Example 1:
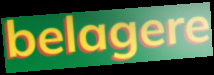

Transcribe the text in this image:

belagere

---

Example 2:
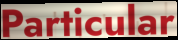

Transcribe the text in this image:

Particular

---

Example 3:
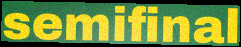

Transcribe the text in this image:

semifinal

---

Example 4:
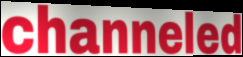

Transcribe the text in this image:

channeled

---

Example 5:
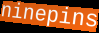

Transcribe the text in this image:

ninepins